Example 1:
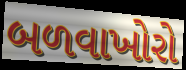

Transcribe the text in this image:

બળવાખોરો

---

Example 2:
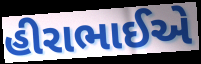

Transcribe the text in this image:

હીરાભાઈએ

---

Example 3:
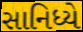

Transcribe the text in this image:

સાનિધ્યે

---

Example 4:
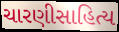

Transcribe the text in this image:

ચારણીસાહિત્ય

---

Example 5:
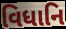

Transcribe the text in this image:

વિધાનિ